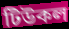
টিউকল